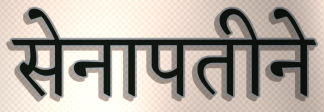
सेनापतीने